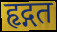
हृद्गत